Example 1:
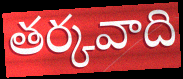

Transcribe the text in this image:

తర్కవాది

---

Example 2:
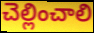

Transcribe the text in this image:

చెల్లించాలి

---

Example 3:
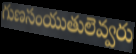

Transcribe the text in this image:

గుణసంయుతులెవ్వరు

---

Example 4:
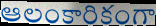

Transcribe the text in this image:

ఆలంకారికంగా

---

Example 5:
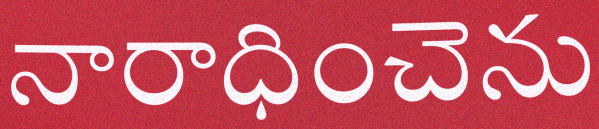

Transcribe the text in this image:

నారాధించెను